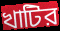
খাটির